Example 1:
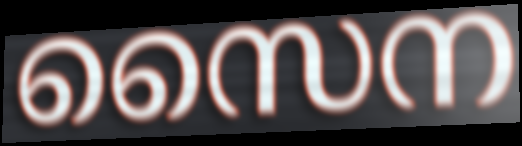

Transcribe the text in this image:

സൈന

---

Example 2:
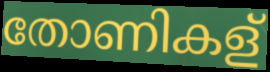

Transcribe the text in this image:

തോണികള്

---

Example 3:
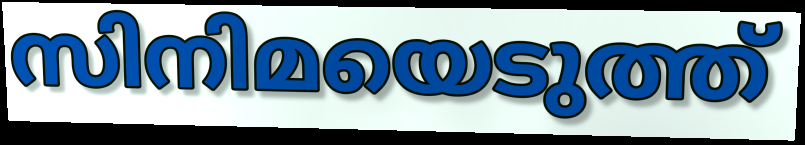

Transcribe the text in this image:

സിനിമയെടുത്ത്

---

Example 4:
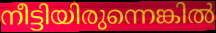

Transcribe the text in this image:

നീട്ടിയിരുന്നെങ്കിൽ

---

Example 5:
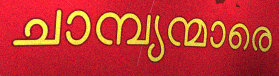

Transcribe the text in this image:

ചാമ്പ്യന്മാരെ